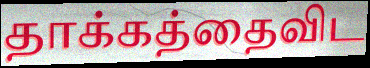
தாக்கத்தைவிட